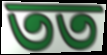
তত